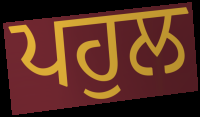
ਪਹੁਲ